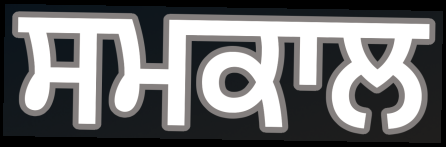
ਸਮਕਾਲ